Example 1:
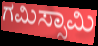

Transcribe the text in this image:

ಗಮಿಸ್ಸಾಮಿ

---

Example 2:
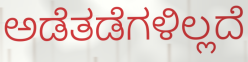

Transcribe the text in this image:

ಅಡೆತಡೆಗಳಿಲ್ಲದೆ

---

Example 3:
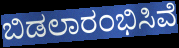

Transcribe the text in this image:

ಬಿಡಲಾರಂಭಿಸಿವೆ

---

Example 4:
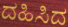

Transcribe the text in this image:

ದಹಿಸಿದ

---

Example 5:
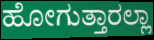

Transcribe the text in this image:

ಹೋಗುತ್ತಾರಲ್ಲಾ